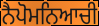
ਨੈਪੋਮਨਿਆਚੀ